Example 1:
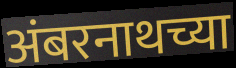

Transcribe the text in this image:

अंबरनाथच्या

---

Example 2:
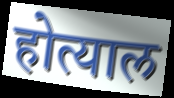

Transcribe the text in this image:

होत्याल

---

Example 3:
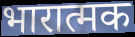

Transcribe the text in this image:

भारात्मक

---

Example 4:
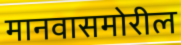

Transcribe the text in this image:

मानवासमोरील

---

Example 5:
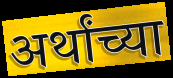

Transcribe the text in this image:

अर्थांच्या